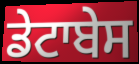
ਡੇਟਾਬੇਸ